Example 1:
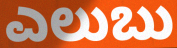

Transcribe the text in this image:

ಎಲುಬು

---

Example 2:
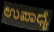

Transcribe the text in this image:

ಉಪಾಧ್ಯೆ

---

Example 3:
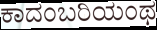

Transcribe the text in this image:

ಕಾದಂಬರಿಯಂಥ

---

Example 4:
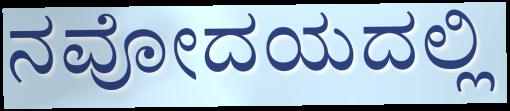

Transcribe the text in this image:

ನವೋದಯದಲ್ಲಿ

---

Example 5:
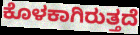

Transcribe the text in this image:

ಕೊಳಕಾಗಿರುತ್ತದೆ